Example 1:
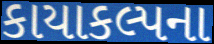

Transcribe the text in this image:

કાયાકલ્પના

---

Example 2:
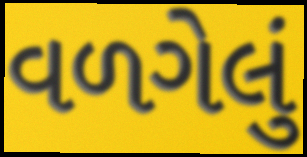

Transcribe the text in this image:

વળગેલું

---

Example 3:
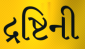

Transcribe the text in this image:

દ્રષ્ટિની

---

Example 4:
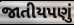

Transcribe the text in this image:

જાતીયપણું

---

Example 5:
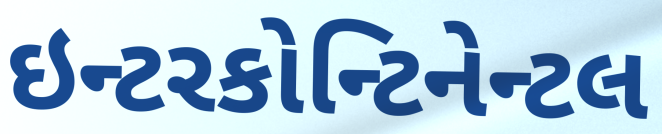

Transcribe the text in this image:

ઇન્ટરકોન્ટિનેન્ટલ